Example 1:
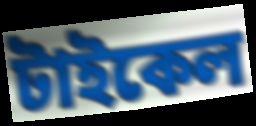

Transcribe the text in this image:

টাইকেল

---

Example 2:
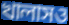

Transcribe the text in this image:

খালাসও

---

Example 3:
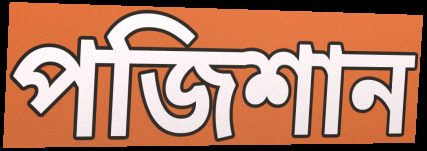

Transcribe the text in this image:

পজিশান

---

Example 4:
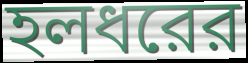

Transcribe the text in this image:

হলধরের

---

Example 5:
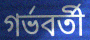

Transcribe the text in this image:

গর্ভবর্তী